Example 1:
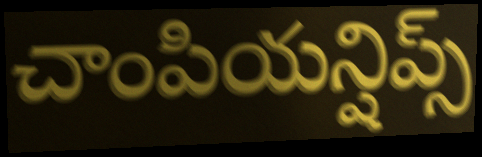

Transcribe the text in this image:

చాంపియన్షిప్స్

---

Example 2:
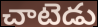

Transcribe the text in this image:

చాటెడు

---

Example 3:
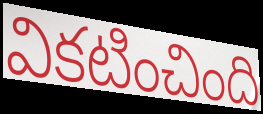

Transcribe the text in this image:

వికటించింది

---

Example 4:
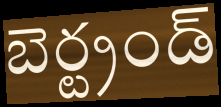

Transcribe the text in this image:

బెర్ట్రండ్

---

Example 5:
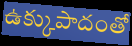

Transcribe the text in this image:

ఉక్కుపాదంతో